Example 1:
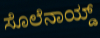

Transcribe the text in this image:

ಸೊಲೆನಾಯ್ಡ್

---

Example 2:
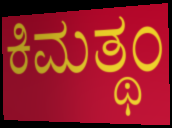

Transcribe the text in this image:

ಕಿಮತ್ಥಂ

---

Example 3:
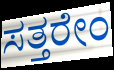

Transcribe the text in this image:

ಸತ್ತರೇಂ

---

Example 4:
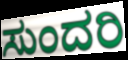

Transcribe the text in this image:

ಸುಂದರಿ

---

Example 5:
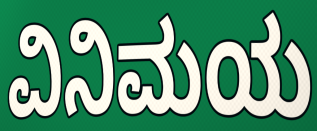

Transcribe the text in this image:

ವಿನಿಮಯ